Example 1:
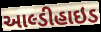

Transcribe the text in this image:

આલ્ડીહાઇડ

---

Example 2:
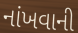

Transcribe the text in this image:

નાંખવાની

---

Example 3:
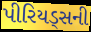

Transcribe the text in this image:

પીરિયડ્સની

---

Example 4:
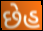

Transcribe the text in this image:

છેહ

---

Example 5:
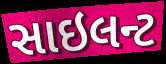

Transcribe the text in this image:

સાઇલન્ટ